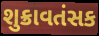
શુક્રાવતંસક